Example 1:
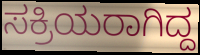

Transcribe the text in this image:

ಸಕ್ರಿಯರಾಗಿದ್ದ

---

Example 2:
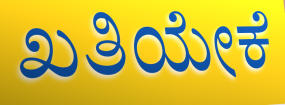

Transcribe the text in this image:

ಖತಿಯೇಕೆ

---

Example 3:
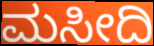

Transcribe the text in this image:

ಮಸೀದಿ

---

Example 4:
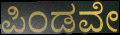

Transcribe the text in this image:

ಪಿಂಡವೇ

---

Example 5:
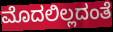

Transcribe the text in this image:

ಮೊದಲಿಲ್ಲದಂತೆ